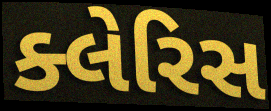
ક્લેરિસ